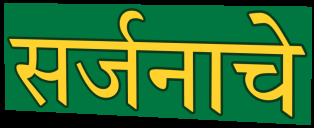
सर्जनाचे